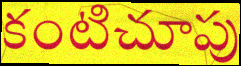
కంటిచూపు